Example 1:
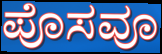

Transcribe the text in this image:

ಪೊಸವೂ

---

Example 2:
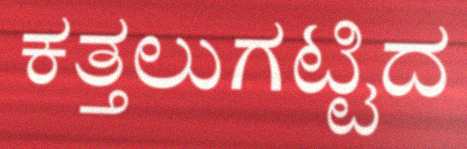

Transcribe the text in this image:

ಕತ್ತಲುಗಟ್ಟಿದ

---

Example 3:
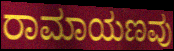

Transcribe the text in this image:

ರಾಮಾಯಣವು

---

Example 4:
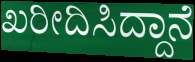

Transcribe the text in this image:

ಖರೀದಿಸಿದ್ದಾನೆ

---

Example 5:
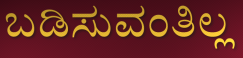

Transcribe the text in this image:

ಬಡಿಸುವಂತಿಲ್ಲ